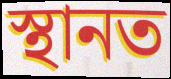
স্থানত